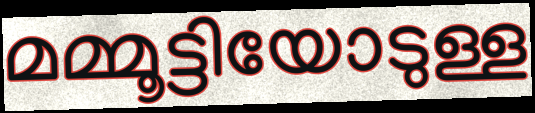
മമ്മൂട്ടിയോടുള്ള